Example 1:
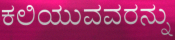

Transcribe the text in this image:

ಕಲಿಯುವವರನ್ನು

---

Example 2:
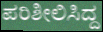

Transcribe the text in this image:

ಪರಿಶೀಲಿಸಿದ್ದ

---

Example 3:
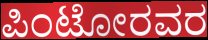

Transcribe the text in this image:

ಪಿಂಟೋರವರ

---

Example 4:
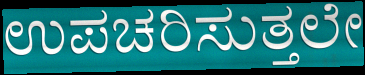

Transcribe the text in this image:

ಉಪಚರಿಸುತ್ತಲೇ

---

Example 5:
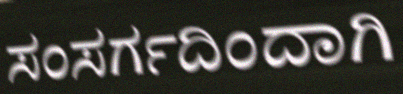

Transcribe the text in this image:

ಸಂಸರ್ಗದಿಂದಾಗಿ